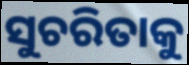
ସୁଚରିତାକୁ